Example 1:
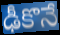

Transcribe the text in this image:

ఢీకొనే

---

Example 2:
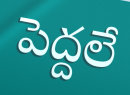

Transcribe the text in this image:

పెద్దలే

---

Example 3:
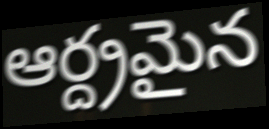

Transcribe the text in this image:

ఆర్ద్రమైన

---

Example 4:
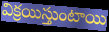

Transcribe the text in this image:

విక్రయిస్తుంటాయి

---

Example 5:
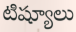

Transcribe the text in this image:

టిష్యూలు